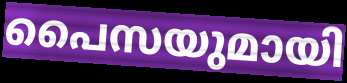
പൈസയുമായി